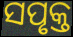
ସପୃକ୍ତ